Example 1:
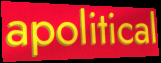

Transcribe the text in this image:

apolitical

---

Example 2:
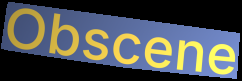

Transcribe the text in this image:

Obscene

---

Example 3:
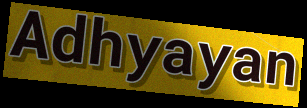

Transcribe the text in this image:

Adhyayan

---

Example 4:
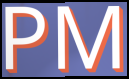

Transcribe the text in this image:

PM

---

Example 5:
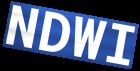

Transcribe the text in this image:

NDWI